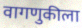
वागणुकीला